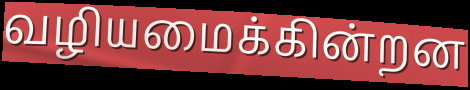
வழியமைக்கின்றன